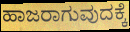
ಹಾಜರಾಗುವುದಕ್ಕೆ